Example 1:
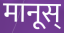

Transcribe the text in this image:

मानूस्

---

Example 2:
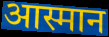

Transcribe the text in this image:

आस्मान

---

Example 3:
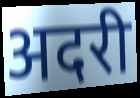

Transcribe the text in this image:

अदरी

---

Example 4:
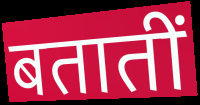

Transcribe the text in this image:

बतातीं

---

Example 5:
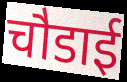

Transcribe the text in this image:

चौडाई